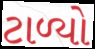
ટાળ્યો